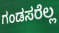
ಗಂಡಸರೆಲ್ಲ